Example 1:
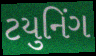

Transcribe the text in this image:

ટયુનિંગ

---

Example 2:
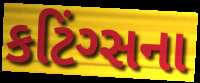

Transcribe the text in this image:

કટિંગ્સના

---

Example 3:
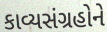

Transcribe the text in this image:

કાવ્યસંગ્રહોને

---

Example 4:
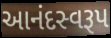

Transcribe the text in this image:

આનંદસ્વરૂપ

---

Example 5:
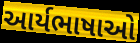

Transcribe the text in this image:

આર્યભાષાઓ